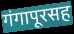
गंगापूरसह